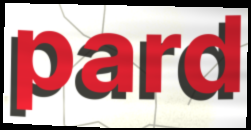
pard